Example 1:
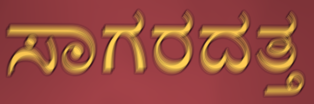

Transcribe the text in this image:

ಸಾಗರದತ್ತ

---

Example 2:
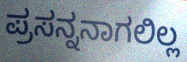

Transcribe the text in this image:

ಪ್ರಸನ್ನನಾಗಲಿಲ್ಲ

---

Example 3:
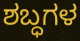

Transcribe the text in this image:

ಶಬ್ಧಗಳ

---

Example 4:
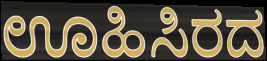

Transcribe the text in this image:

ಊಹಿಸಿರದ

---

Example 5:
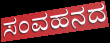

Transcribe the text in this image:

ಸಂವಹನದ